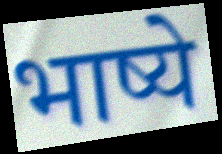
भाष्ये